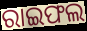
ରାଇଫଲ